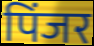
पिंजर